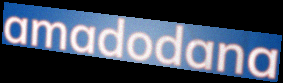
amadodana